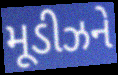
મૂડીઝને